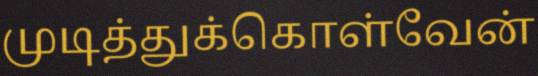
முடித்துக்கொள்வேன்